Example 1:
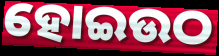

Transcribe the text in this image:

ହୋଇଉଠ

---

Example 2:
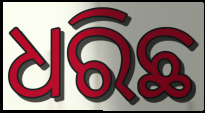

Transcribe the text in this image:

ଧରିଛ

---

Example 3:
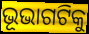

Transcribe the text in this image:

ଭୂଭାଗଟିକୁ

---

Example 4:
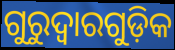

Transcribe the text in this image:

ଗୁରୁଦ୍ବାରଗୁଡ଼ିକ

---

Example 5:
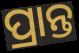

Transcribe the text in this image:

ପ୍ରାନ୍ତ